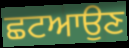
ਛਟਆਉਣ